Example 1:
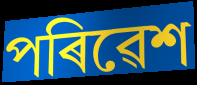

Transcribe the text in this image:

পৰিৱেশ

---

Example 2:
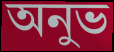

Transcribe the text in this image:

অনুভ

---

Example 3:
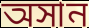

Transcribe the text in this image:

অসান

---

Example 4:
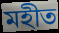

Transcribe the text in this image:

মহীত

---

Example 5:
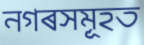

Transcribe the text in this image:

নগৰসমূহত